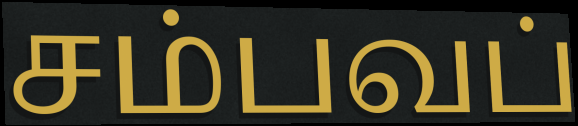
சம்பவப்